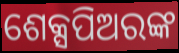
ଶେକ୍ସପିଅରଙ୍କ